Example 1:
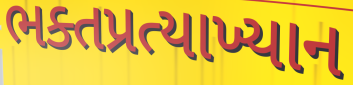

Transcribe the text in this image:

ભક્તપ્રત્યાખ્યાન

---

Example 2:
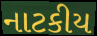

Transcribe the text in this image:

નાટકીય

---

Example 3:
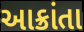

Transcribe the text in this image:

આક્રાંતા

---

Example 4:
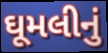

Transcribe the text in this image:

ઘૂમલીનું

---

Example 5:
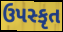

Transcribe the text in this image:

ઉપસ્કૃત